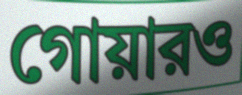
গোয়ারও